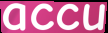
accu